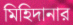
মিহিদানার